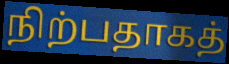
நிற்பதாகத்